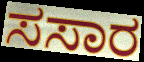
ಸಸಾರ